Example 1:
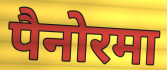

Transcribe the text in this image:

पैनोरमा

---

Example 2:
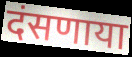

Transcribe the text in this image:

दंसणाया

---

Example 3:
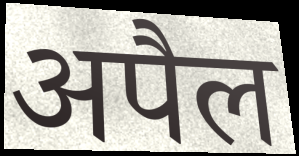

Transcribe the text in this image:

अपैल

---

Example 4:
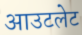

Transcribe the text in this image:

आउटलेट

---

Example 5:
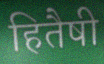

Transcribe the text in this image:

हितैषी